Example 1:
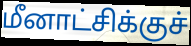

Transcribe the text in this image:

மீனாட்சிக்குச்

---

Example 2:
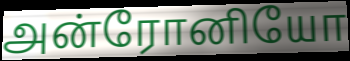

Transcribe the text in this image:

அன்ரோனியோ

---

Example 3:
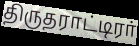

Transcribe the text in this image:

திருதராட்டிரர்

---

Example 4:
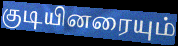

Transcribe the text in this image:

குடியினரையும்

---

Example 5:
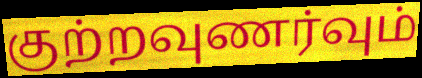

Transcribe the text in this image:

குற்றவுணர்வும்